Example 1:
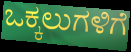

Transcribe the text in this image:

ಒಕ್ಕಲುಗಳಿಗೆ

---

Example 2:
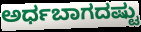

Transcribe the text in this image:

ಅರ್ಧಬಾಗದಷ್ಟು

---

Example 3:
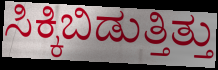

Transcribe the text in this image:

ಸಿಕ್ಕಿಬಿಡುತ್ತಿತ್ತು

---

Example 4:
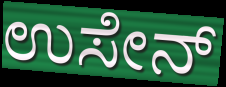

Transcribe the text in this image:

ಉಸೇನ್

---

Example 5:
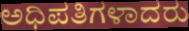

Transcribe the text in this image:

ಅಧಿಪತಿಗಳಾದರು